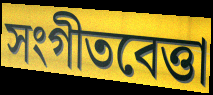
সংগীতবেত্তা